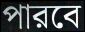
পারবে